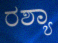
ರಶ್ಯಾ